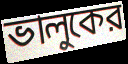
ভালুকের